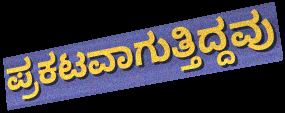
ಪ್ರಕಟವಾಗುತ್ತಿದ್ದವು